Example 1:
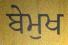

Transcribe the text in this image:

ਬੇਮੁਖ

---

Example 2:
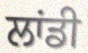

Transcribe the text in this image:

ਲਾਂਡੀ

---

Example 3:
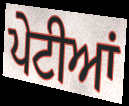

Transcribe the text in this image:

ਪੇਟੀਆਂ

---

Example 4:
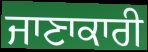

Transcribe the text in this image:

ਜਾਣਾਕਾਰੀ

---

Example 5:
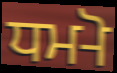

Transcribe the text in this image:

ਧਮ੍ਮੋ